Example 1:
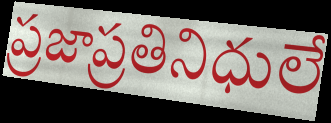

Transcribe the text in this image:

ప్రజాప్రతినిధులే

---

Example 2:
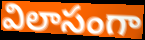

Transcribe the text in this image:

విలాసంగా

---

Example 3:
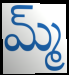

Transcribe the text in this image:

మ్మ్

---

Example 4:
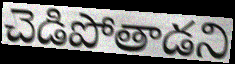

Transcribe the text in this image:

చెడిపోతాడని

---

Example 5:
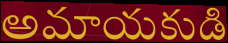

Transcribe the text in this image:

అమాయకుడి